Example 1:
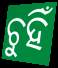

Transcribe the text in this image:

ଚୁହିଁ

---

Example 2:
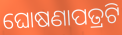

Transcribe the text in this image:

ଘୋଷଣାପତ୍ରଟି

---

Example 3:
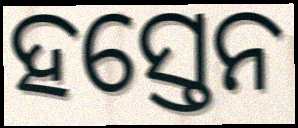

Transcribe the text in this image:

ହସ୍ତେନ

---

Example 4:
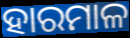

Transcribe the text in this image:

ହାରମାଳ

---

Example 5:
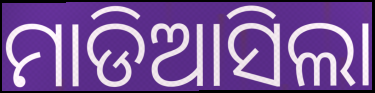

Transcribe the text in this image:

ମାଡିଆସିଲା